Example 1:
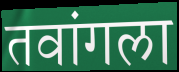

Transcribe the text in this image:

तवांगला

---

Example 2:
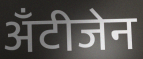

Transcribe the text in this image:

अँटीजेन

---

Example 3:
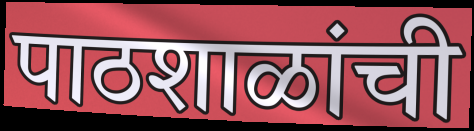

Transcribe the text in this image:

पाठशाळांची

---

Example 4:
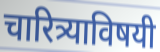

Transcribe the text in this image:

चारित्र्याविषयी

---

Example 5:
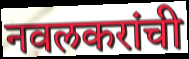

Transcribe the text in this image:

नवलकरांची